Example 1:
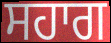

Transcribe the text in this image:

ਸਹਾਗ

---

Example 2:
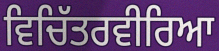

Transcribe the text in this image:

ਵਿਚਿੱਤਰਵੀਰਿਆ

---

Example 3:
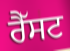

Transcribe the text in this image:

ਰੈੱਸਟ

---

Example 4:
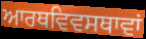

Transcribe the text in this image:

ਆਰਥਵਿਵਸਥਾਵਾਂ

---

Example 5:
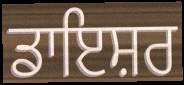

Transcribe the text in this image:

ਡਾਇਸ਼ਰ